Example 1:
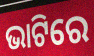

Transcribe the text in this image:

ଭାଟିରେ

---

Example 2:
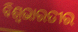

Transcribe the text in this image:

ବିଶ୍ୱଭାରତୀର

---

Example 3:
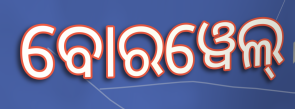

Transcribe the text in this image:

ବୋରୱେଲ୍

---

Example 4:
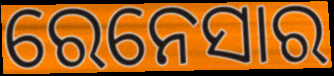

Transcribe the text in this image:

ରେନେସାର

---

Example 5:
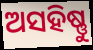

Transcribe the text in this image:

ଅସହିଷ୍ଣୁ